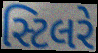
સ્ટિલરે